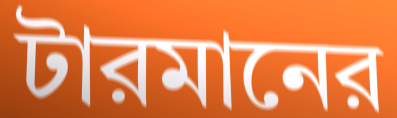
টারমানের